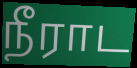
நீராட